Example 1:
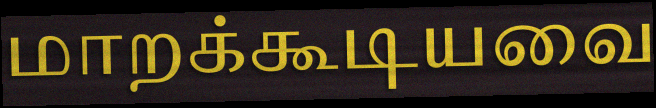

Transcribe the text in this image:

மாறக்கூடியவை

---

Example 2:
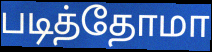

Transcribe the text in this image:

படித்தோமா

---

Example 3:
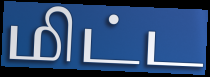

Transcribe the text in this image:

மிட்ட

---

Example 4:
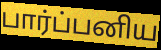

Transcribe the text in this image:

பார்ப்பனிய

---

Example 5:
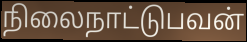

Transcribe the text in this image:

நிலைநாட்டுபவன்